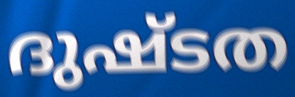
ദുഷ്ടത